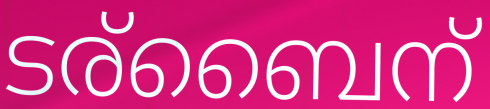
ടര്ബൈന്